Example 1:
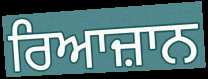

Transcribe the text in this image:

ਰਿਆਜ਼ਾਨ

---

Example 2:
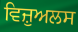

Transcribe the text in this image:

ਵਿਜ਼ੁਅਲਸ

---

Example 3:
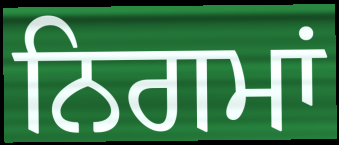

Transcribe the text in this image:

ਨਿਗਮਾਂ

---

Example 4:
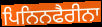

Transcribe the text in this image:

ਪਿਨਿਨਫੈਰੀਨਾ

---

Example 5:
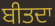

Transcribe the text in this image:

ਬੀਤਦਾ